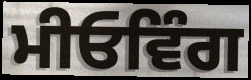
ਮੀਓਵਿੰਗ